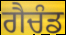
ਗੈਚੰਡ